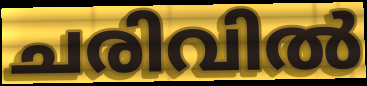
ചരിവിൽ